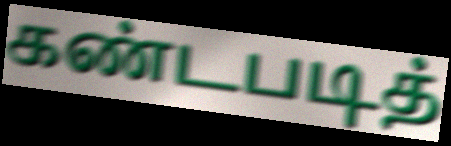
கண்டபடித்